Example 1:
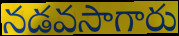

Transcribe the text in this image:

నడవసాగారు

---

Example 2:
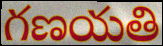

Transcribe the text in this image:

గణయతి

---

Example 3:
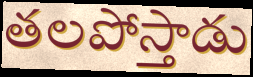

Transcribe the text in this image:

తలపోస్తాడు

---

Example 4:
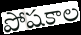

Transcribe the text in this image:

పోషకాల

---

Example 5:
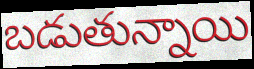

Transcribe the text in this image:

బడుతున్నాయి